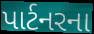
પાર્ટનરના